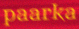
paarka